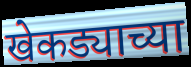
खेकड्याच्या